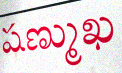
షణ్ముఖ